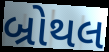
બ્રોથલ